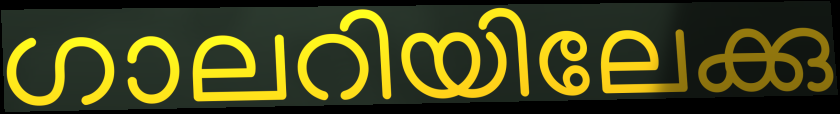
ഗാലറിയിലേക്കു